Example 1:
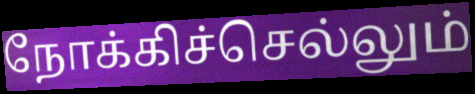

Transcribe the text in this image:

நோக்கிச்செல்லும்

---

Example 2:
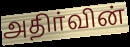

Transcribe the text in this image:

அதிர்வின்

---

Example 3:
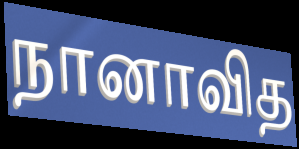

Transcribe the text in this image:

நானாவித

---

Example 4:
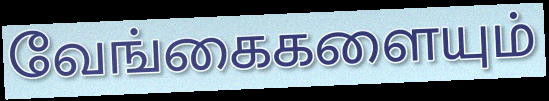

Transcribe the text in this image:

வேங்கைகளையும்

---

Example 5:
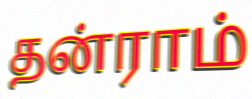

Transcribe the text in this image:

தன்ராம்